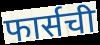
फार्सची